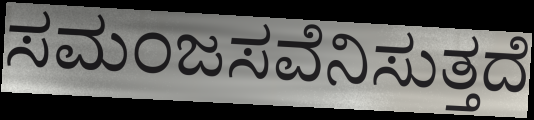
ಸಮಂಜಸವೆನಿಸುತ್ತದೆ